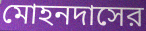
মোহনদাসের